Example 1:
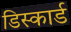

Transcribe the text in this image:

डिस्कार्ड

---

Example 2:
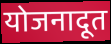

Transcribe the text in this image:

योजनादूत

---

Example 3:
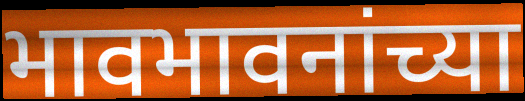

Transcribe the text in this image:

भावभावनांच्या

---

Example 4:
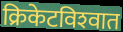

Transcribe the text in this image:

क्रिकेटविश्‍वात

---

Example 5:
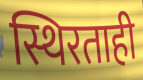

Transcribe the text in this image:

स्थिरताही